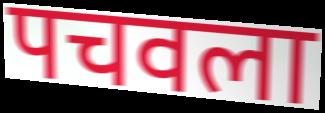
पचवला